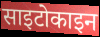
साइटोकाइन